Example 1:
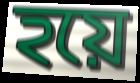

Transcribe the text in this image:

হয়ে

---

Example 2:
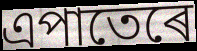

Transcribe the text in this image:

এপাতেৰে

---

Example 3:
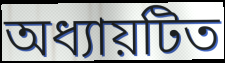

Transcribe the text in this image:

অধ্যায়টিত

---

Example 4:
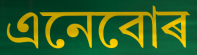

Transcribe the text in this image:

এনেবোৰ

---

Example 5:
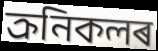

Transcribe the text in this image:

ক্ৰনিকলৰ